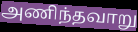
அணிந்தவாறு